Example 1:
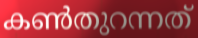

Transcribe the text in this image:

കൺതുറന്നത്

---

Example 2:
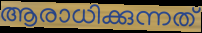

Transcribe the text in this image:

ആരാധിക്കുന്നത്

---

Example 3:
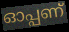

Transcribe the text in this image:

ഓപ്പണ്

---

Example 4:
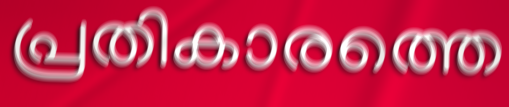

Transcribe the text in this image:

പ്രതികാരത്തെ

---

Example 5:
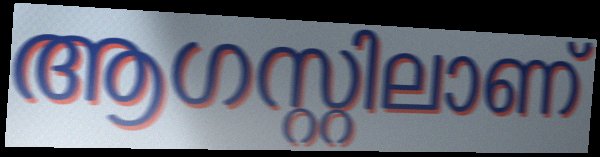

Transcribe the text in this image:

ആഗസ്റ്റിലാണ്